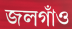
জলগাঁও